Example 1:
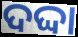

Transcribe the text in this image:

ଦଦ୍ଦା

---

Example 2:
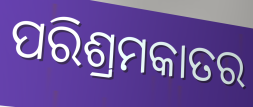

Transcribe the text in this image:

ପରିଶ୍ରମକାତର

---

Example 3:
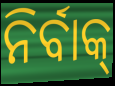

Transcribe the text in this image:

ନିର୍ବାକ୍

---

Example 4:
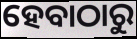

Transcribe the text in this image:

ହେବାଠାରୁ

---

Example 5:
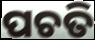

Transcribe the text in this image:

ପଚତି